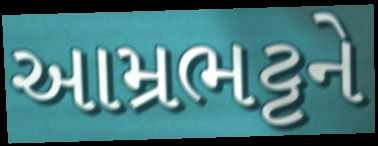
આમ્રભટ્ટને